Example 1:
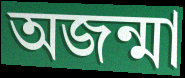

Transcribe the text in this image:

অজন্মা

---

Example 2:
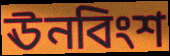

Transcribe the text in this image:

ঊনবিংশ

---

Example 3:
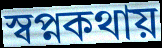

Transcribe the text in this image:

স্বপ্নকথায়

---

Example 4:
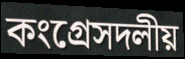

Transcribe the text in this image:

কংগ্রেসদলীয়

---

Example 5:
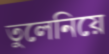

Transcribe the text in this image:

তুলেনিয়ে